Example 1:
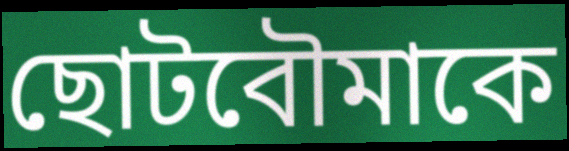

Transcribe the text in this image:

ছোটবৌমাকে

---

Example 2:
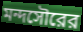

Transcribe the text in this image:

মন্দসৌরের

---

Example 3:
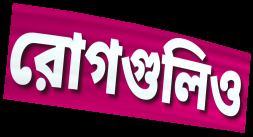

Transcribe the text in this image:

রোগগুলিও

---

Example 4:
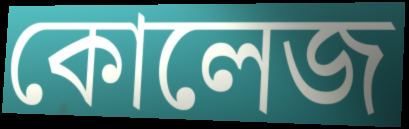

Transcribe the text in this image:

কোলেজ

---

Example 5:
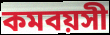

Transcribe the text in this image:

কমবয়সী